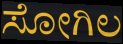
ಸೋಗಿಲ